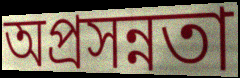
অপ্রসন্নতা